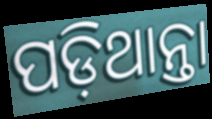
ପଡ଼ିଥାନ୍ତା